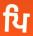
ਪਿ